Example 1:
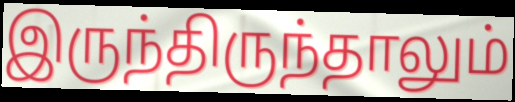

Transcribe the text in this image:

இருந்திருந்தாலும்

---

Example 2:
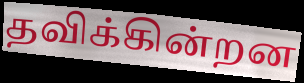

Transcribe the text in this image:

தவிக்கின்றன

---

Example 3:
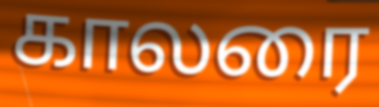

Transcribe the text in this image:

காலரை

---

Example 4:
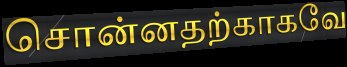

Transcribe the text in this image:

சொன்னதற்காகவே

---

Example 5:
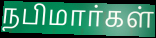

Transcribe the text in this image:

நபிமார்கள்